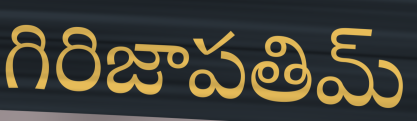
గిరిజాపతిమ్